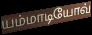
யம்மாடியோவ்